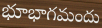
భూభాగమందు